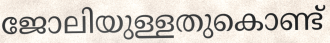
ജോലിയുള്ളതുകൊണ്ട്